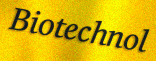
Biotechnol